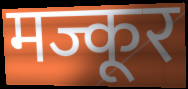
मज्कूर